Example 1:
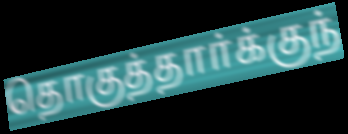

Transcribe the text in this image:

தொகுத்தார்க்குந்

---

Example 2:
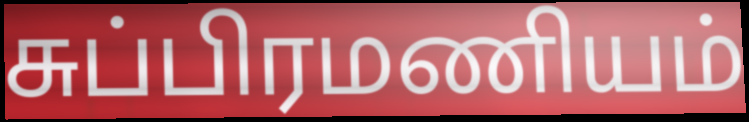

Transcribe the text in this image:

சுப்பிரமணியம்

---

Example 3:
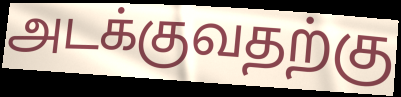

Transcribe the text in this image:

அடக்குவதற்கு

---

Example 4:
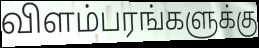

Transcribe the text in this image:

விளம்பரங்களுக்கு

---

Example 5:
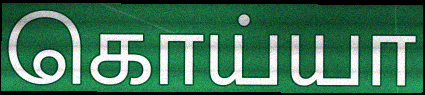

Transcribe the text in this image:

கொய்யா